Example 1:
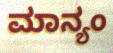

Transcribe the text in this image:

ಮಾನ್ಯಂ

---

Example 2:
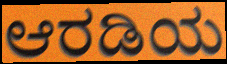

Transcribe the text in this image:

ಆರಡಿಯ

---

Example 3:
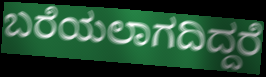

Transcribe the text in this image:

ಬರೆಯಲಾಗದಿದ್ದರೆ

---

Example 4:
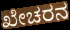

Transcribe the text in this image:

ಖೇಚರನ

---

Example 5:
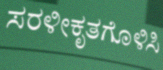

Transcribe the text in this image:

ಸರಳೀಕೃತಗೊಳಿಸಿ